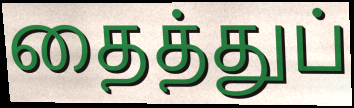
தைத்துப்